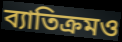
ব্যাতিক্রমও